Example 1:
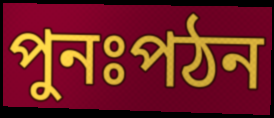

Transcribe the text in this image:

পুনঃপঠন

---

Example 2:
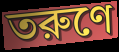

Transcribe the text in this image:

তরুণে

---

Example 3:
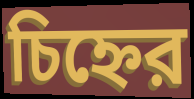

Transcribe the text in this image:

চিহ্নের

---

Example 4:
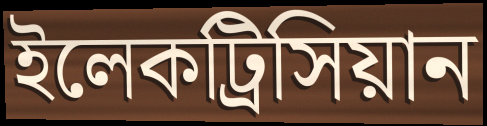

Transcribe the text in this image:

ইলেকট্রিসিয়ান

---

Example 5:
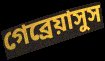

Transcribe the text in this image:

গেব্রেয়াসুস